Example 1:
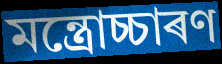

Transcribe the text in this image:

মন্ত্ৰোচ্চাৰণ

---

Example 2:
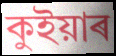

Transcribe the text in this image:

কুইয়াৰ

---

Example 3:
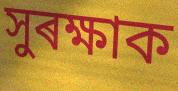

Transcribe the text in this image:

সুৰক্ষাক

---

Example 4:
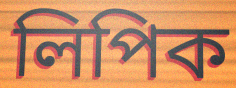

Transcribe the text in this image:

লিপিক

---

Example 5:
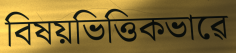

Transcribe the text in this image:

বিষয়ভিত্তিকভাৱে